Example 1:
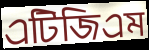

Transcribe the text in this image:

এটিজিএম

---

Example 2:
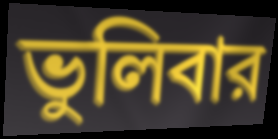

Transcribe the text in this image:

ভুলিবার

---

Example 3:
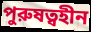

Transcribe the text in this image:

পুরুষত্বহীন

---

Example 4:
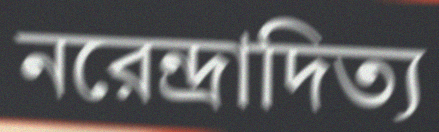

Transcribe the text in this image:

নরেন্দ্রাদিত্য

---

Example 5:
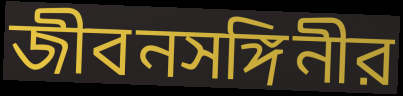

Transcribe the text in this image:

জীবনসঙ্গিনীর